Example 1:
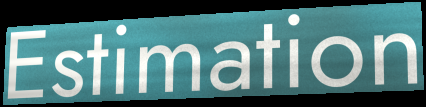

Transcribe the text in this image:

Estimation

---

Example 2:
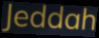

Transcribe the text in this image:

Jeddah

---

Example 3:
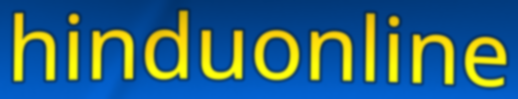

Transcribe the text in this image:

hinduonline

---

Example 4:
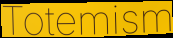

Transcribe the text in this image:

Totemism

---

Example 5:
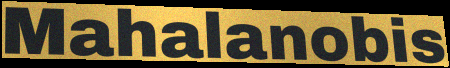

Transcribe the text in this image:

Mahalanobis